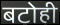
बटोही